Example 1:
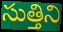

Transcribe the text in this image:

సుత్తిని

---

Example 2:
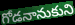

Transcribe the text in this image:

గోడనానుకుని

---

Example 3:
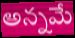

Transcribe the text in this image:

అన్నమే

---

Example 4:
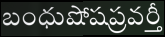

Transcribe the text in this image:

బంధుషోషప్రవర్తీ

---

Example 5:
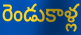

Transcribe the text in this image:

రెండుకాళ్ల